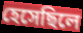
হেসেছিলে